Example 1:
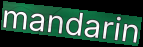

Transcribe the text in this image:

mandarin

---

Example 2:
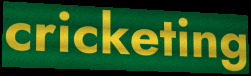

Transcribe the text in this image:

cricketing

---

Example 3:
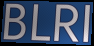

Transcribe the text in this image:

BLRI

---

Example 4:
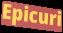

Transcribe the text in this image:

Epicuri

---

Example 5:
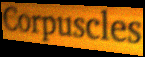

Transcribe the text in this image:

Corpuscles